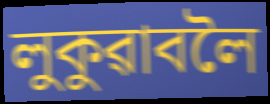
লুকুৱাবলৈ